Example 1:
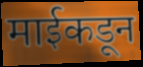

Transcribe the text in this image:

माईकडून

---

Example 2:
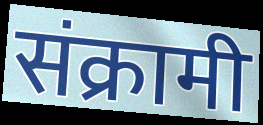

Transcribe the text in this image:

संक्रामी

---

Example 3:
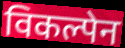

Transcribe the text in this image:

विकल्पेन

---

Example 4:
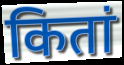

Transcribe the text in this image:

कितां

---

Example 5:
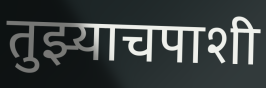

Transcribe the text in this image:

तुझ्याचपाशी